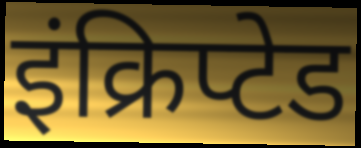
इंक्रिप्टेड